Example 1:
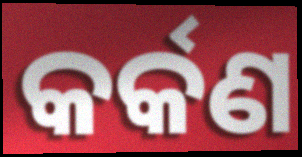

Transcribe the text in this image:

କର୍କଣ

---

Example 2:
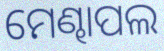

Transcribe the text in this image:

ମେଣ୍ଢାପଲ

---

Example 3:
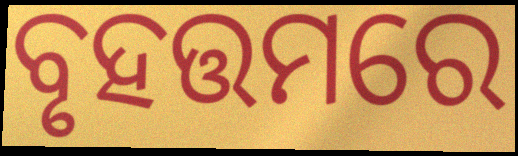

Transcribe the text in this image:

ବୃହତ୍ତମରେ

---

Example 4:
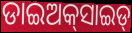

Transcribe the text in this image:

ଡାଇଅକ୍‌ସାଇଡ୍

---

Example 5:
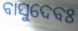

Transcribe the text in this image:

ବାସୁଦେବଃ